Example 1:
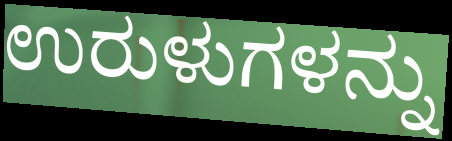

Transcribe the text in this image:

ಉರುಳುಗಳನ್ನು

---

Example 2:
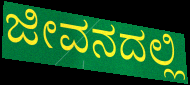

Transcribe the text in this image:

ಜೀವನದಲ್ಲಿ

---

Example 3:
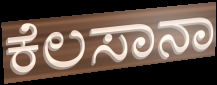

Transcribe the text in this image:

ಕೆಲಸಾನಾ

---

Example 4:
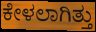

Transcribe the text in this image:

ಕೇಳಲಾಗಿತ್ತು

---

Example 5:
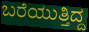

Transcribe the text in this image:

ಬರೆಯುತ್ತಿದ್ದ